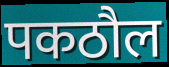
पकठौल